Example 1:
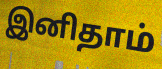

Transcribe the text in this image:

இனிதாம்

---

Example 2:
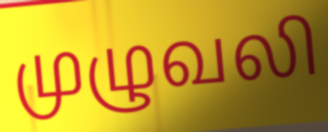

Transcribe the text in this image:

முழுவலி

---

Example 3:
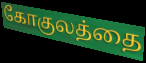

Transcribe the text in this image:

கோகுலத்தை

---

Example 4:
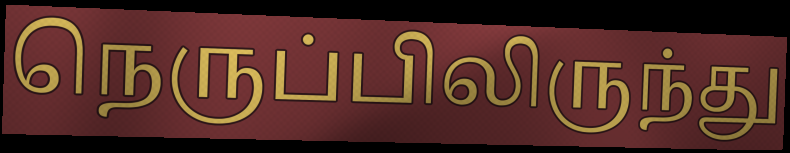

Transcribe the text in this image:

நெருப்பிலிருந்து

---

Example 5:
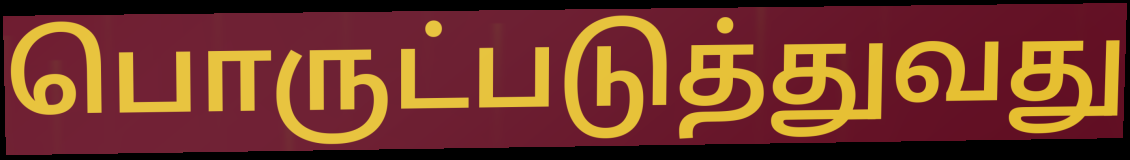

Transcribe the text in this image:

பொருட்படுத்துவது